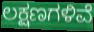
ಲಕ್ಷಣಗಳಿವೆ